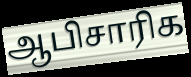
ஆபிசாரிக